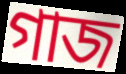
গাজ